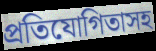
প্রতিযোগিতাসহ